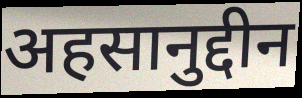
अहसानुद्दीन